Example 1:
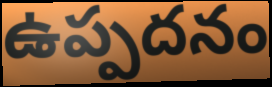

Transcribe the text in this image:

ఉప్పదనం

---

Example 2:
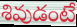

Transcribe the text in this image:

శివుడంటే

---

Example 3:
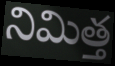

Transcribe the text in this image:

నిమిత్త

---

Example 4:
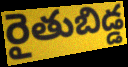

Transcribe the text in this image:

రైతుబిడ్డ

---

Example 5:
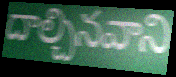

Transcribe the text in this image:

దాల్చినవాని